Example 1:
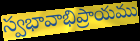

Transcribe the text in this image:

స్వభావాభిప్రాయము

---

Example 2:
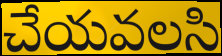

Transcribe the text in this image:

చేయవలసి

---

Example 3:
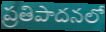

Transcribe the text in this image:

ప్రతిపాదనలో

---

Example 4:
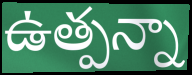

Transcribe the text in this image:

ఉత్పన్నా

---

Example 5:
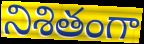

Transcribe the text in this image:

నిశితంగా